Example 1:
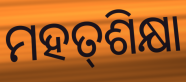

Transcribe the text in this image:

ମହତ୍‌ଶିକ୍ଷା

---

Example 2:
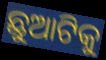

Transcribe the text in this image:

ଛୁଆଟିକୁ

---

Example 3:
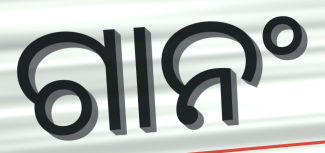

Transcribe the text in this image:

ଗାନଂ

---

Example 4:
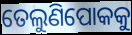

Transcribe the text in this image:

ତେଲୁଣିପୋକକୁ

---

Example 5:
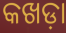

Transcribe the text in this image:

କଖଡ଼ା